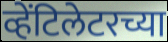
व्हेंटिलेटरच्या